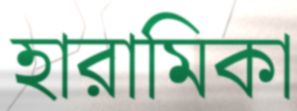
হারামিকা